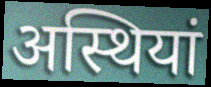
अस्थियां